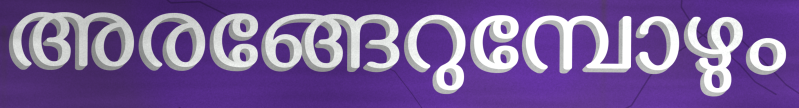
അരങ്ങേറുമ്പോഴും